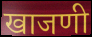
खाजणी